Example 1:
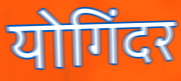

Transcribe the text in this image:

योगिंदर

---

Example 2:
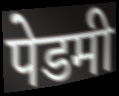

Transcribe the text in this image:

पेडमी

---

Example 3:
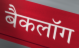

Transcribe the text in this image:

बैकलॉग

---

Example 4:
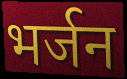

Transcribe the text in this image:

भर्जन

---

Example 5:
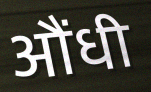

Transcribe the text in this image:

औंधी